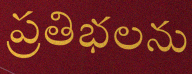
ప్రతిభలను